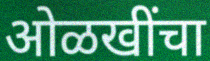
ओळखींचा